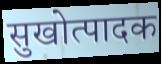
सुखोत्पादक